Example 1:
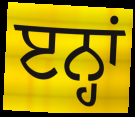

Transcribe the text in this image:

ੲਨ੍ਹਾਂ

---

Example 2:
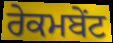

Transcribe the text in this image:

ਰੇਕਮਬੇਂਟ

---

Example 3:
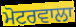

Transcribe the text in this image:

ਮੋਟਰਵਾਲਾ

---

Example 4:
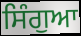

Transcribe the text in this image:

ਸਿੰਗੁਆ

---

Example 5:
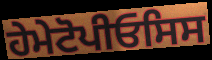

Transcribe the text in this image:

ਹੇਮੇਟੋਪੀਓਸਿਸ